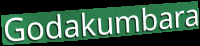
Godakumbara